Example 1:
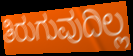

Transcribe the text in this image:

ತಿರುಗುವುದಿಲ್ಲ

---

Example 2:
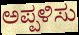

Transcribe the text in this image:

ಅಪ್ಪಳಿಸು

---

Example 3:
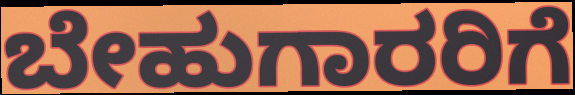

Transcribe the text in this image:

ಬೇಹುಗಾರರಿಗೆ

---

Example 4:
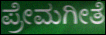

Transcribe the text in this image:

ಪ್ರೇಮಗೀತೆ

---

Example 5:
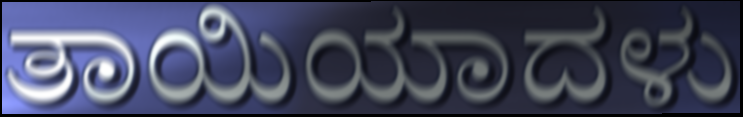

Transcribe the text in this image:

ತಾಯಿಯಾದಳು